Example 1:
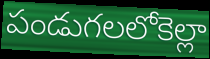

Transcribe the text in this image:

పండుగలలోకెల్లా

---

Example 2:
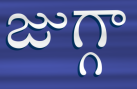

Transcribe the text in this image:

జుగ్గా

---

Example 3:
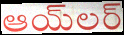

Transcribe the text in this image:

ఆయ్‌లర్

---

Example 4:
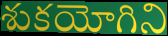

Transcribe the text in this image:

శుకయోగిని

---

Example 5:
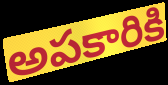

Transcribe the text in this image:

అపకారికి